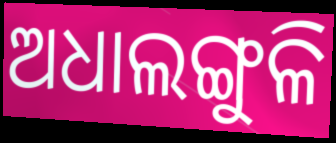
ଅଧାଲଙ୍ଗୁଳି